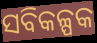
ସବିକଳ୍ପକ